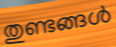
തുണ്ടങ്ങൾ